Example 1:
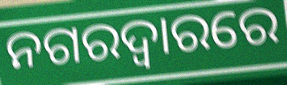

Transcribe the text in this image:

ନଗରଦ୍ୱାରରେ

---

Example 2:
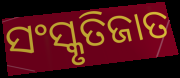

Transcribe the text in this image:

ସଂସ୍କୃତିଜାତ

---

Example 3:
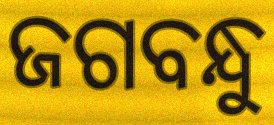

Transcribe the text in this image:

ଜଗବନ୍ଧୁ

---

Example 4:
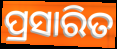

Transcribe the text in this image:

ପ୍ରସାରିତ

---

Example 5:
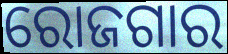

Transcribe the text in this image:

ରୋଜଗାର